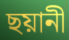
ছয়ানী